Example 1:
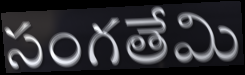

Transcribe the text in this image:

సంగతేమి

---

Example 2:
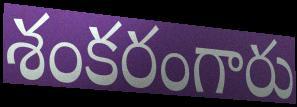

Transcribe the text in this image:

శంకరంగారు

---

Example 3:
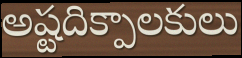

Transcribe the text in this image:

అష్టదిక్పాలకులు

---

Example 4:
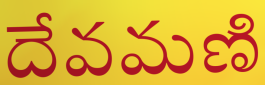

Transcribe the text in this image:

దేవమణి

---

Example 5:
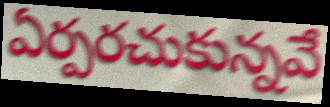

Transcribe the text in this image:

ఏర్పరచుకున్నవే